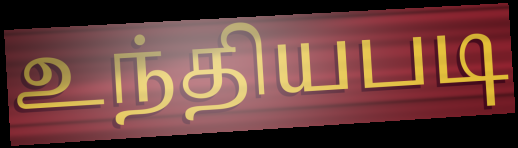
உந்தியபடி